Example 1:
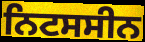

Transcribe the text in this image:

ਨਿਟਸਸੀਨ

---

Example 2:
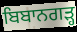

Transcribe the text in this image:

ਬਿਬਾਨਗੜ੍ਹ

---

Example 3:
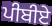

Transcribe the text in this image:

ਪੀਬੀਏ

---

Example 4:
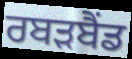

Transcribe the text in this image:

ਰਬੜਬੈਂਡ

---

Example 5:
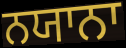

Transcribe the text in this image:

ਨਯਾਨਾ